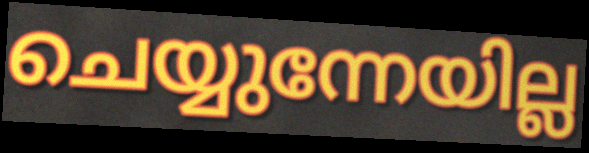
ചെയ്യുന്നേയില്ല